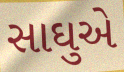
સાઘુએ